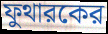
ফুথারকের